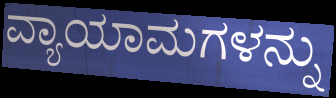
ವ್ಯಾಯಾಮಗಳನ್ನು